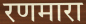
रणमारा